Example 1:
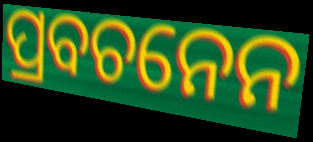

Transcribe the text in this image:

ପ୍ରବଚନେନ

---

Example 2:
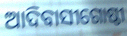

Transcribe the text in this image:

ଆଦିବାସୀଗୋଷ୍ଠୀ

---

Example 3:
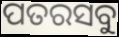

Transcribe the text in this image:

ପତରସବୁ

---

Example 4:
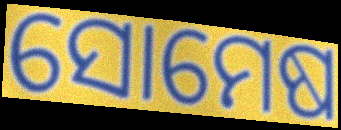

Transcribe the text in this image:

ସୋମେଷ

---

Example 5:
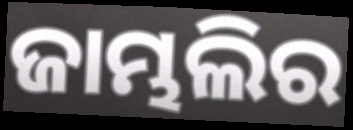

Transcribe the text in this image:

ଜାମ୍ଭଲିର